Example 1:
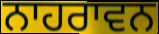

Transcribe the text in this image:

ਨਾਹਰਾਵਨ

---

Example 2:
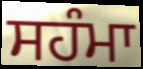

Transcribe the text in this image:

ਸਹੰਮਾ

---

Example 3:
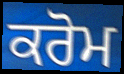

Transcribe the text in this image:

ਕਰੋਮ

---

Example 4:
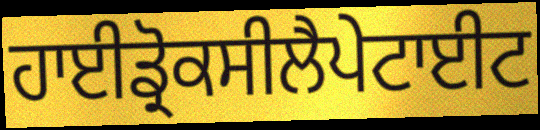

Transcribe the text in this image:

ਹਾਈਡ੍ਰੋਕਸੀਲੈਪੇਟਾਈਟ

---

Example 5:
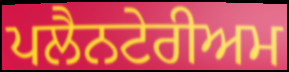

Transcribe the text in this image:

ਪਲੈਨਟੇਰੀਅਮ